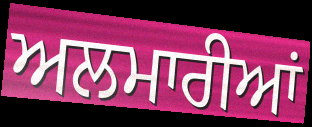
ਅਲਮਾਰੀਆਂ